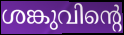
ശങ്കുവിന്റെ